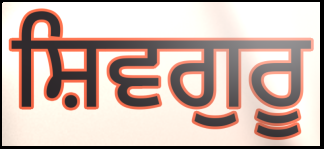
ਸ਼ਿਵਗੁਰੂ